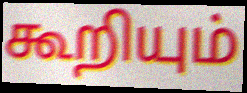
கூறியும்